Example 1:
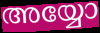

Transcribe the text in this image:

അയ്യോ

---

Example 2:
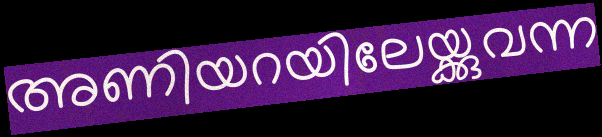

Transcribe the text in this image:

അണിയറയിലേയ്ക്കുവന്ന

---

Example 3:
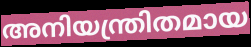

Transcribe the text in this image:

അനിയന്ത്രിതമായ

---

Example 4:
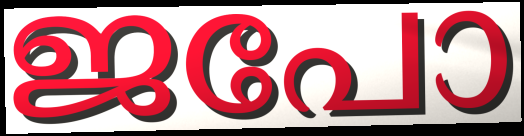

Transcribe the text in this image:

ജപോ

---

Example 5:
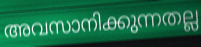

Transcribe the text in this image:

അവസാനിക്കുന്നതല്ല